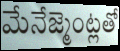
మేనేజ్మెంట్లతో